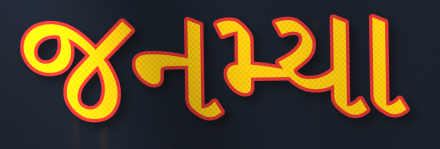
જનમ્યા